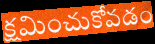
క్షమించుకోవడం